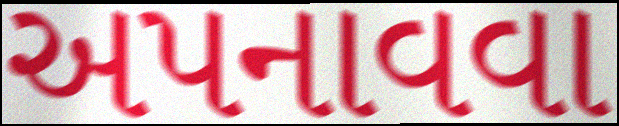
અપનાવવા